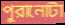
পুরানোটা